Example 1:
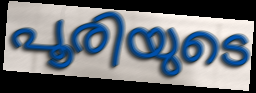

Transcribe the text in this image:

പൂരിയുടെ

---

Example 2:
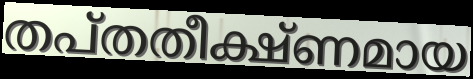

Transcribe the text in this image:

തപ്തതീക്ഷ്ണമായ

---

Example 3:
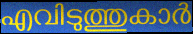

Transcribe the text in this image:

എവിടുത്തുകാർ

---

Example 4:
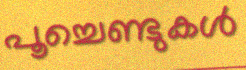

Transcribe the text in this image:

പൂച്ചെണ്ടുകൾ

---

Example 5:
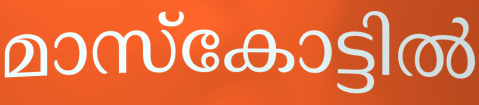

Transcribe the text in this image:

മാസ്കോട്ടിൽ